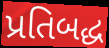
પ્રતિબદ્ધ